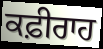
ਕਫ਼ੀਰਾਹ